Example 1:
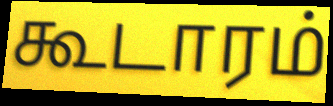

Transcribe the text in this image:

கூடாரம்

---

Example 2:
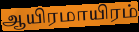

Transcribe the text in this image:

ஆயிரமாயிரம்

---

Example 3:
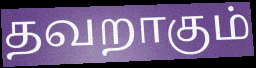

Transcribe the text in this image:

தவறாகும்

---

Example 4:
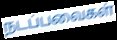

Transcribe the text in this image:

நடப்பவைகள்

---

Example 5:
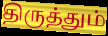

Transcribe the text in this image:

திருத்தும்